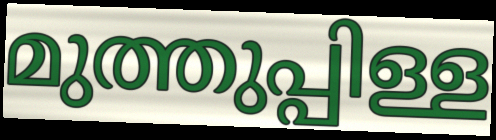
മുത്തുപ്പിള്ള